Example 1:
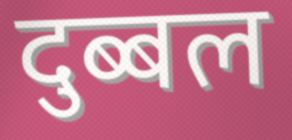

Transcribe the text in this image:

दुब्बल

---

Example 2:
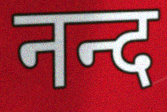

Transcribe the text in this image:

नन्द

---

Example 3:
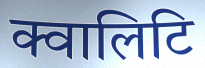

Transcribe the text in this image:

क्वालिटि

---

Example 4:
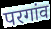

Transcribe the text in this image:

परगांव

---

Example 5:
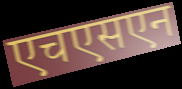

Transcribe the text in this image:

एचएसएन